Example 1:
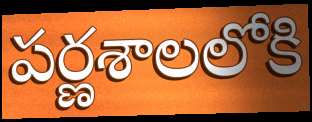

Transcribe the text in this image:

పర్ణశాలలోకి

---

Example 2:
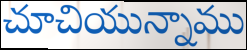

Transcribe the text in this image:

చూచియున్నాము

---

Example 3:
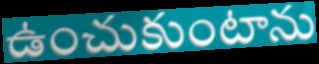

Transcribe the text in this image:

ఉంచుకుంటాను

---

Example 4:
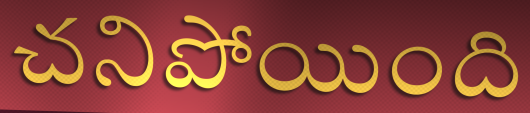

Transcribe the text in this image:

చనిపోయింది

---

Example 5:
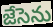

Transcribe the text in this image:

జేసెను